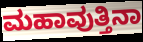
ಮಹಾವುತ್ತಿನಾ